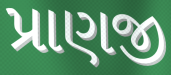
પ્રાણજી